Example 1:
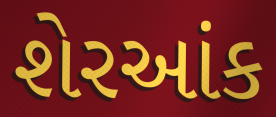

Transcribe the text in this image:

શેરઆંક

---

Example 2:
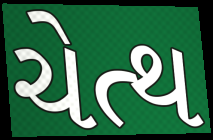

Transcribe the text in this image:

ચેત્થ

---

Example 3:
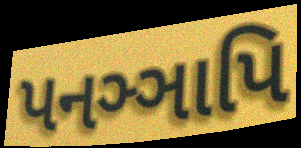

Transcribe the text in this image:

પનઞ્ઞાપિ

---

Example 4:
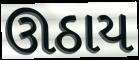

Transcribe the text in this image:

ઊઠાય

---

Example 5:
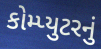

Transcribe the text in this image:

કોમ્પ્યુટરનું